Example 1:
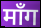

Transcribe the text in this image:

माँग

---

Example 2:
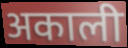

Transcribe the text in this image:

अकाली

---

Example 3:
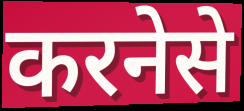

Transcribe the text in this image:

करनेसे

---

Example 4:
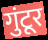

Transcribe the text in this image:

गुंटूर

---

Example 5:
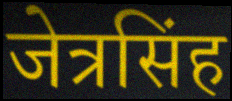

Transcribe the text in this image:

जेत्रसिंह